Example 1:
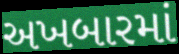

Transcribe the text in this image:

અખબારમાં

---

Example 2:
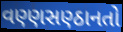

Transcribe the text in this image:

વણ્ણસણ્ઠાનતો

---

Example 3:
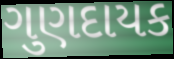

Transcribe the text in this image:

ગુણદાયક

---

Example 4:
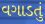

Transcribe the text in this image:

વગાડતું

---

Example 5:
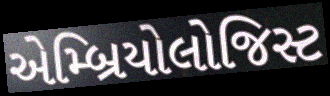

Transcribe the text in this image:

એમ્બ્રિયોલોજિસ્ટ